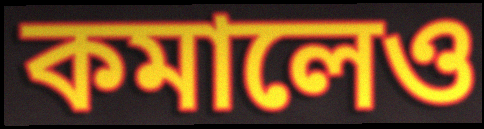
কমালেও